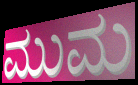
ಮುಮ